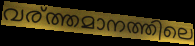
വര്ത്തമാനത്തിലെ